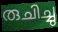
രുചിച്ചു